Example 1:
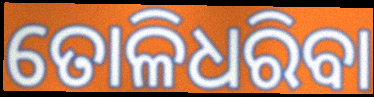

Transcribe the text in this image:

ତୋଳିଧରିବା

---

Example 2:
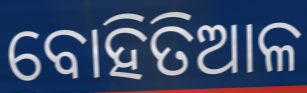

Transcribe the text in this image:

ବୋହିତିଆଳ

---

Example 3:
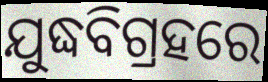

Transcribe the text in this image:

ଯୁଦ୍ଧବିଗ୍ରହରେ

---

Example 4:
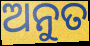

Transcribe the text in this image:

ଅନୁତ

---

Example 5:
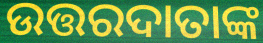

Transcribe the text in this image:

ଉତ୍ତରଦାତାଙ୍କ